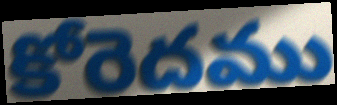
కోరెదము